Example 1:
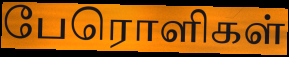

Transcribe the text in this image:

பேரொளிகள்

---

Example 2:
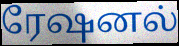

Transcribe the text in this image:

ரேஷனல்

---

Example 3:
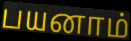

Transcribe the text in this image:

பயனாம்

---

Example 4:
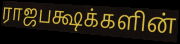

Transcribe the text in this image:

ராஜபக்ஷக்களின்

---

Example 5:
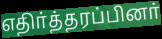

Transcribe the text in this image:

எதிர்த்தரப்பினர்